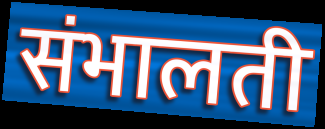
संभालती